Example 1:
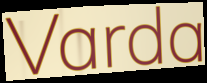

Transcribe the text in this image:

Varda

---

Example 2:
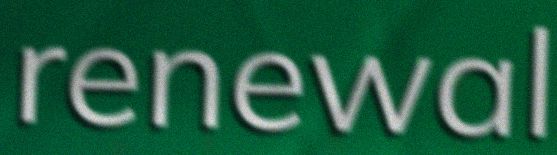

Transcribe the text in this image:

renewal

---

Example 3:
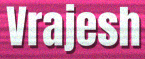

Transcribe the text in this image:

Vrajesh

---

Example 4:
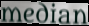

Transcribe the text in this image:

median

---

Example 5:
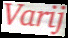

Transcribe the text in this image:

Varij